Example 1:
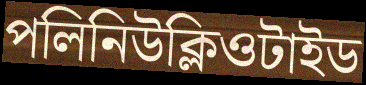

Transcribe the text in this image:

পলিনিউক্লিওটাইড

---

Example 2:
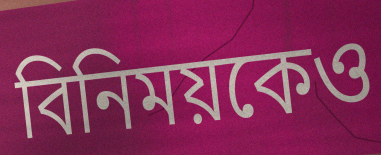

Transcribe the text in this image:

বিনিময়কেও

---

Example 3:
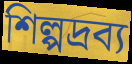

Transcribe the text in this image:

শিল্পদ্রব্য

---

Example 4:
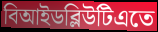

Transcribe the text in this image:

বিআইডব্লিউটিএতে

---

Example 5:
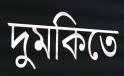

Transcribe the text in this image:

দুমকিতে